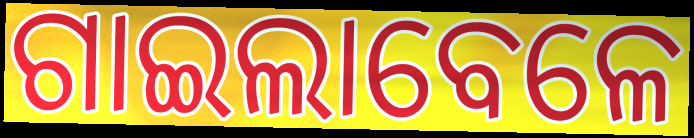
ଗାଇଲାବେଳେ